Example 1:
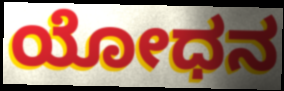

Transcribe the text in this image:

ಯೋಧನ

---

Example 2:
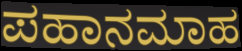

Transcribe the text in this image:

ಪಹಾನಮಾಹ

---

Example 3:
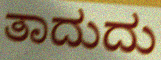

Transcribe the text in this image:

ತಾದುದು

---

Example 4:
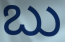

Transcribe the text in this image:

ಬು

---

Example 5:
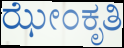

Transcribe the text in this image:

ಝೇಂಕೃತಿ